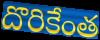
దొరికేంత